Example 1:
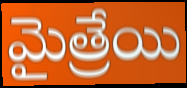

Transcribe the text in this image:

మైత్రేయి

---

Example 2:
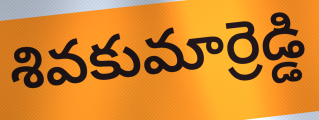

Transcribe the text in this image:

శివకుమార్రెడ్డి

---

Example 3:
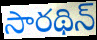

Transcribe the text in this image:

సారథిన్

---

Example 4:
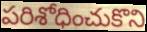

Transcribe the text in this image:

పరిశోధించుకొని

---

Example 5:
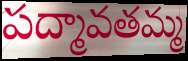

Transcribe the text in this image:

పద్మావతమ్మ